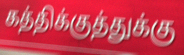
கத்திக்குத்துக்கு